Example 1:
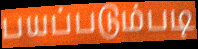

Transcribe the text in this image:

பயப்படும்படி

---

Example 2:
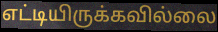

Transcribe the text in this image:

எட்டியிருக்கவில்லை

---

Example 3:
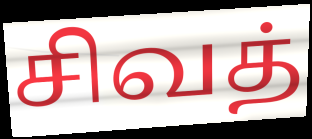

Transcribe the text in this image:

சிவத்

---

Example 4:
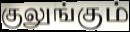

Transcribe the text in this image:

குலுங்கும்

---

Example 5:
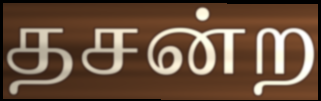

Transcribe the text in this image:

தசன்ற